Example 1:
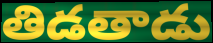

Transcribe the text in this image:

తిడతాడు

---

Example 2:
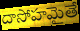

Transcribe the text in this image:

దాసోహమైతే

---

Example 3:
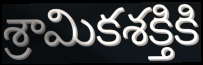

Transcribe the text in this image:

శ్రామికశక్తికి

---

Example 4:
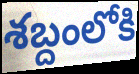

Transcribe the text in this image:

శబ్దంలోకి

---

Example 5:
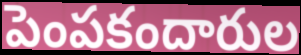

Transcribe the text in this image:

పెంపకందారుల